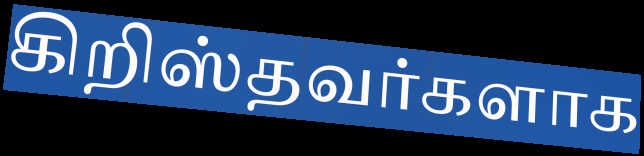
கிறிஸ்தவர்களாக